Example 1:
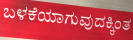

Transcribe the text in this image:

ಬಳಕೆಯಾಗುವುದಕ್ಕಿಂತ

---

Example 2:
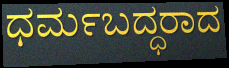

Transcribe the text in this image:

ಧರ್ಮಬದ್ಧರಾದ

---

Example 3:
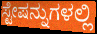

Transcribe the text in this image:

ಸ್ಟೇಷನ್ನುಗಳಲ್ಲಿ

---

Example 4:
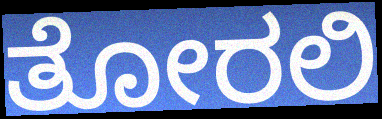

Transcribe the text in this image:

ತೋರಲಿ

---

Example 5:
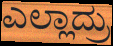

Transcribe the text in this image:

ಎಲ್ಲಾದ್ರು